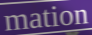
mation